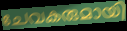
ചേവകരുമായി